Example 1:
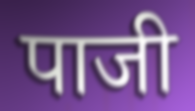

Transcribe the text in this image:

पाजी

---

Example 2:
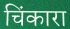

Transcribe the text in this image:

चिंकारा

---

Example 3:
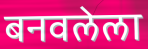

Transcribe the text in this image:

बनवलेला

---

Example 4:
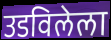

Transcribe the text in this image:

उडविलेला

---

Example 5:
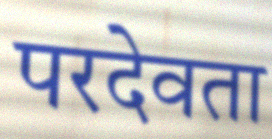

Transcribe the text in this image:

परदेवता